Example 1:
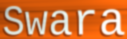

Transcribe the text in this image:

Swara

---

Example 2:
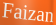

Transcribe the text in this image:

Faizan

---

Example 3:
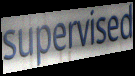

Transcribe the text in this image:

supervised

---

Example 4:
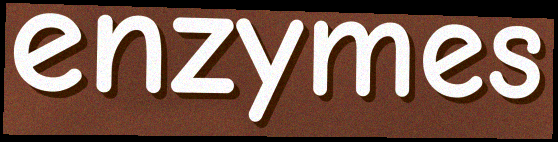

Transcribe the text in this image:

enzymes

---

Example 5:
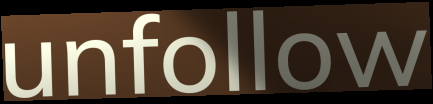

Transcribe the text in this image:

unfollow